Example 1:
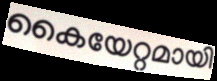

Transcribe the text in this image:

കൈയേറ്റമായി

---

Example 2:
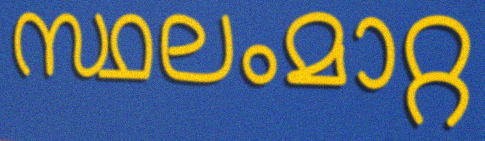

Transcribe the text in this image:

സ്ഥലംമാറ്റ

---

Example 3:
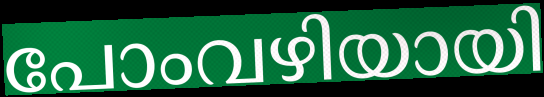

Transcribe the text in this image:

പോംവഴിയായി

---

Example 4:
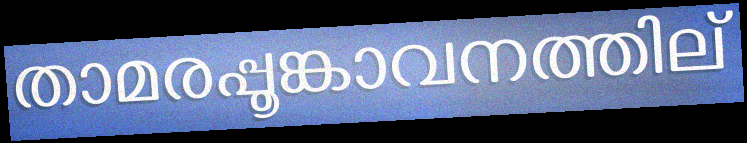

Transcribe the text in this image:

താമരപ്പൂങ്കാവനത്തില്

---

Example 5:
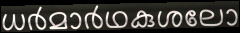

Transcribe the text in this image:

ധർമാർഥകുശലോ